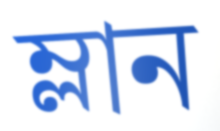
ম্লান